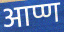
आप्ण